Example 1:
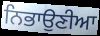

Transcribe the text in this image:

ਨਿਭਾਉਣੀਆ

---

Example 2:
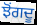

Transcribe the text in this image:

ਝੋਂਗਦੂ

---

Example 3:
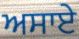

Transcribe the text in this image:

ਅਸਾਏ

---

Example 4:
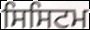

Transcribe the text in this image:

ਸਿਸਿਟਮ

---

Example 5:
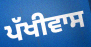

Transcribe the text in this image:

ਪੱਖੀਵਾਸ